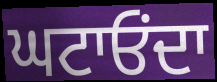
ਘਟਾਓਂਦਾ